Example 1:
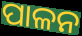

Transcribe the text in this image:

ପାଳନ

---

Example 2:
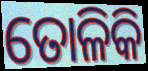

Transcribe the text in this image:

ତୋଳିକି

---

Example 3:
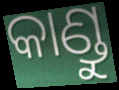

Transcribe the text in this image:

କାଣ୍ଡୁ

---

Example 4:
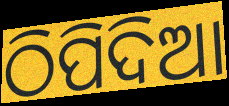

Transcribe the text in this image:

ଠିପିଦିଆ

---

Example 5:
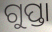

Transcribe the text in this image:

ଗୁପ୍ତା